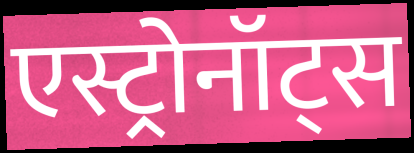
एस्ट्रोनॉट्स